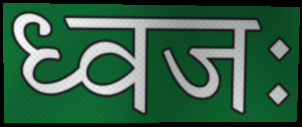
ध्वजः